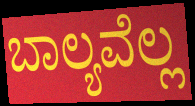
ಬಾಲ್ಯವೆಲ್ಲ